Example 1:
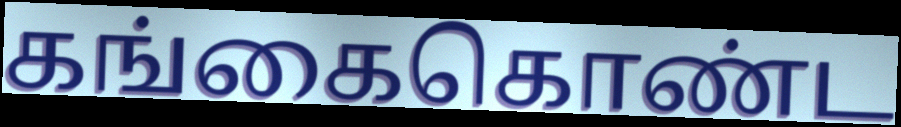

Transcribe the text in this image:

கங்கைகொண்ட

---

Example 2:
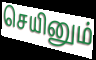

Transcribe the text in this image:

செயினும்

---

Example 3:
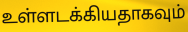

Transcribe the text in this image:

உள்ளடக்கியதாகவும்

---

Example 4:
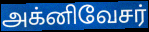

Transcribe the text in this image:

அக்னிவேசர்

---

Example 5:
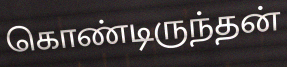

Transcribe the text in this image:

கொண்டிருந்தன்